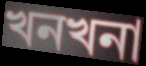
খনখনা